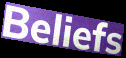
Beliefs